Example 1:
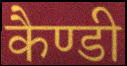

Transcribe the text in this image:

कैण्डी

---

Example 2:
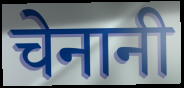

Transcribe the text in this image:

चेनानी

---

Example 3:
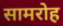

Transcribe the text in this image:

सामरोह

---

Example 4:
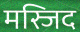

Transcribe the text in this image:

मस्जिद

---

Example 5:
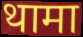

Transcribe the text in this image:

थामा